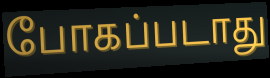
போகப்படாது